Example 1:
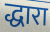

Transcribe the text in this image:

द्धारा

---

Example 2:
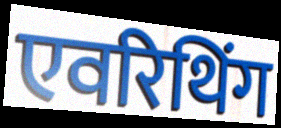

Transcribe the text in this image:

एवरिथिंग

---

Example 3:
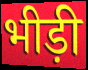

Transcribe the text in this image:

भीड़ी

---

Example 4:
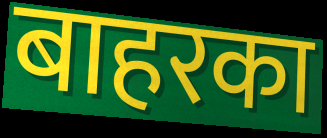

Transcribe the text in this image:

बाहरका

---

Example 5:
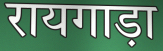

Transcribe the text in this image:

रायगाड़ा